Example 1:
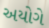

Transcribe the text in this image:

અયોગે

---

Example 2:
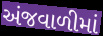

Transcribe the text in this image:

અંજવાળીમાં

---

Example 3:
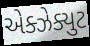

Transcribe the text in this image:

એક્ઝેક્યુટ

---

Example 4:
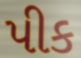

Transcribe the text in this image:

પીક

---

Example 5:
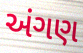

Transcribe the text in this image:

અંગણ